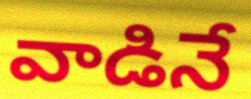
వాడినే